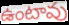
ఉంటావు